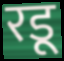
रडू